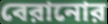
বেরানোর